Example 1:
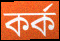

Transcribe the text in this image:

কৰ্ক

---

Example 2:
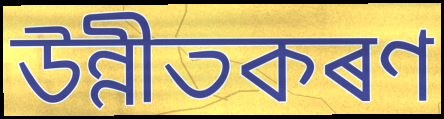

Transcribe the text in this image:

উন্নীতকৰণ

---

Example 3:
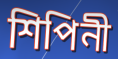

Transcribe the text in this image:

শিপিনী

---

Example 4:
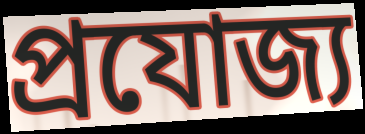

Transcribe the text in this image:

প্ৰযোজ্য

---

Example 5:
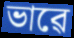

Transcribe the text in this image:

ভাৱে